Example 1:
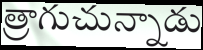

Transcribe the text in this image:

త్రాగుచున్నాడు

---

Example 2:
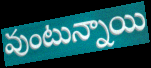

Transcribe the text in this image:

వుంటున్నాయి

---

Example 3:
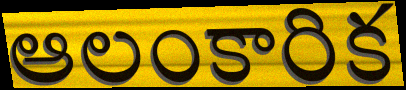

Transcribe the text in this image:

ఆలంకారిక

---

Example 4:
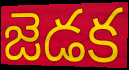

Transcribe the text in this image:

జెడక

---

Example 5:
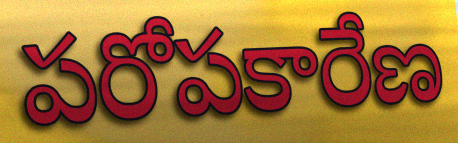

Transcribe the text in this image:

పరోపకారేణ